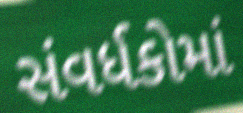
સંવર્ધકોમાં